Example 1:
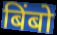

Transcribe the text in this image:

बिंबो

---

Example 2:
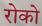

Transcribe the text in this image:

रोको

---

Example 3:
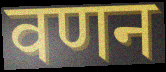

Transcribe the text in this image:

वणन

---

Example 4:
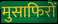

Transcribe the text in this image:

मुसाफिरों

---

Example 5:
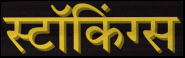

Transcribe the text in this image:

स्टॉकिंग्स